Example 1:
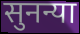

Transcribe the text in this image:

सुनन्या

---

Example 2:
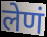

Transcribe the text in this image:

लेणं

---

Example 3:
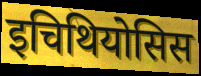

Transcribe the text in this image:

इचिथियोसिस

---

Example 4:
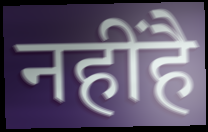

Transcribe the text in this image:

नहींहै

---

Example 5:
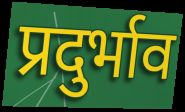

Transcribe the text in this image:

प्रदुर्भाव